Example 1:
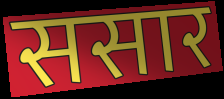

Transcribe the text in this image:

ससार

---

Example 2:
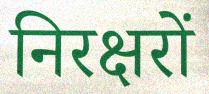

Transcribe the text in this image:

निरक्षरों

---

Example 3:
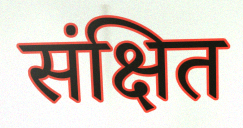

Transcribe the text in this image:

संक्षित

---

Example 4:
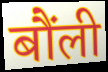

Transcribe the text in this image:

बौंली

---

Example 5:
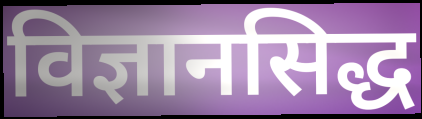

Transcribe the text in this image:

विज्ञानसिद्ध